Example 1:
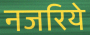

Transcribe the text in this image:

नजरिये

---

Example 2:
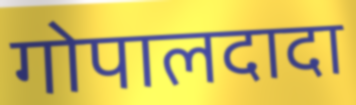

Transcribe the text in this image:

गोपालदादा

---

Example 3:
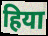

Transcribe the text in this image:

हिया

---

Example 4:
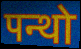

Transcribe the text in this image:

पन्थो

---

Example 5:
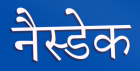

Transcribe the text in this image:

नैस्डेक